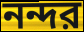
নন্দর